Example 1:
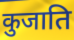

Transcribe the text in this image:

कुजाति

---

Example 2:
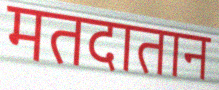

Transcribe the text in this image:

मतदातान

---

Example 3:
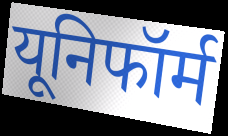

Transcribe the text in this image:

यूनिफॉर्म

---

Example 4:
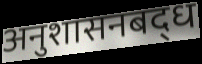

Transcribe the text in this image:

अनुशासनबद्ध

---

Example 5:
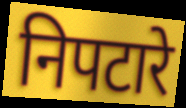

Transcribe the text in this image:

निपटारे